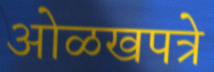
ओळखपत्रे